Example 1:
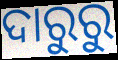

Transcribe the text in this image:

ଦାରୁରୁ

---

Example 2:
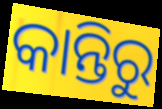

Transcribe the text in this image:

କାନ୍ତିରୁ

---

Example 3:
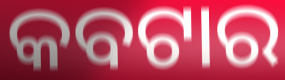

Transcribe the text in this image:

କବଟାର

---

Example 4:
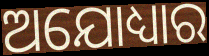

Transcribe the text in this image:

ଅଯୋଧ୍ୟାର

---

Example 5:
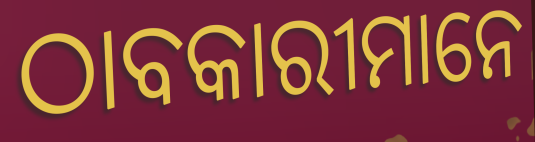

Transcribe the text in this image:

ଠାବକାରୀମାନେ